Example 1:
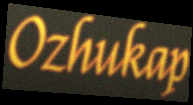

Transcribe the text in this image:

Ozhukap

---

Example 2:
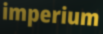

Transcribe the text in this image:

imperium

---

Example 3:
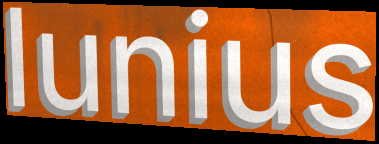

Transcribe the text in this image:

Iunius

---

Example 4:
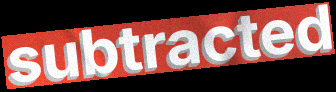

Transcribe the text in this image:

subtracted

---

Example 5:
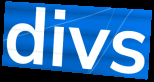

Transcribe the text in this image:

divs